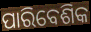
ପାରିବେଶିକ